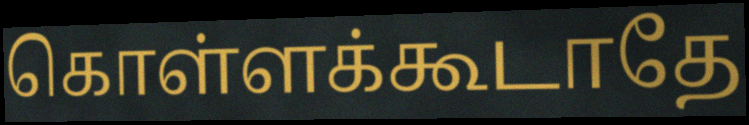
கொள்ளக்கூடாதே